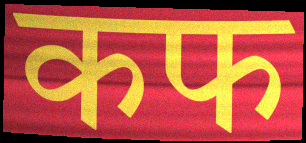
कफ